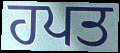
ਹਪਤ